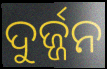
ଦୁର୍ଜ୍ଜନ